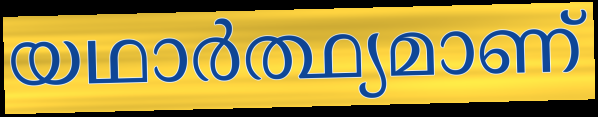
യഥാർത്ഥ്യമാണ്